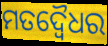
ମତଦ୍ୱୈଧର